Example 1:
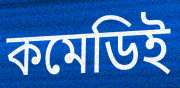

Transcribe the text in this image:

কমেডিই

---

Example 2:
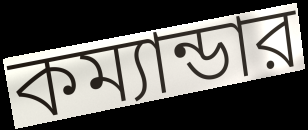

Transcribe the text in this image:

কম্যান্ডার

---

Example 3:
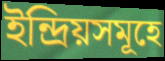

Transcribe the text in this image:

ইন্দ্রিয়সমূহে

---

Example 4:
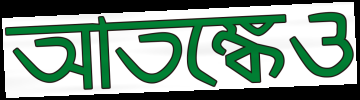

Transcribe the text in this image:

আতঙ্কেও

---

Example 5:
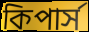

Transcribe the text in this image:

কিপার্স